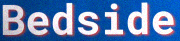
Bedside